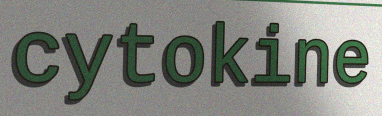
cytokine